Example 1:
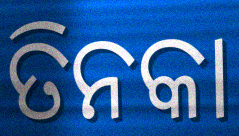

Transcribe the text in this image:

ତିନକା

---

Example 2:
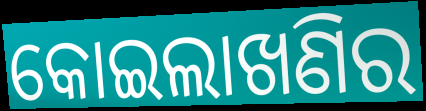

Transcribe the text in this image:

କୋଇଲାଖଣିର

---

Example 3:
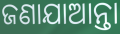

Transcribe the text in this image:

ଜଣାଯାଆନ୍ତା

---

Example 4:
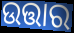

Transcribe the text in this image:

ଉତ୍ତାର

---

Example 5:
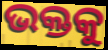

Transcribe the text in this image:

ଭକ୍ତକୁ